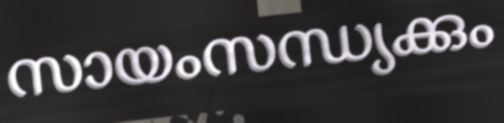
സായംസന്ധ്യക്കും